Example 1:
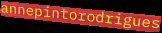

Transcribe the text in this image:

annepintorodrigues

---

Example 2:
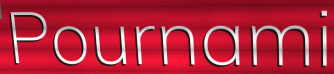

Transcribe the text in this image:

Pournami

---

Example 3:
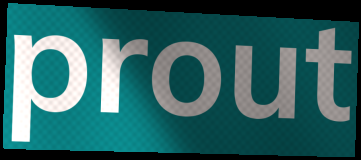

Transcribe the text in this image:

prout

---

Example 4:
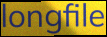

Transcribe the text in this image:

longfile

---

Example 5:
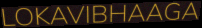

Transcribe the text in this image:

LOKAVIBHAAGA